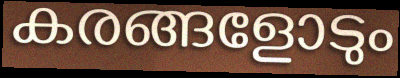
കരങ്ങളോടും